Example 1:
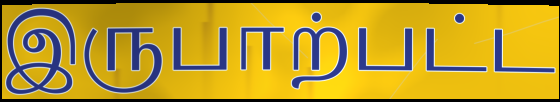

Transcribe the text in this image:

இருபாற்பட்ட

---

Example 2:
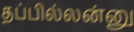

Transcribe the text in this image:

தப்பில்லன்னு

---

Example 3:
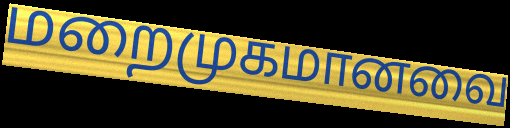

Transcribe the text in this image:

மறைமுகமானவை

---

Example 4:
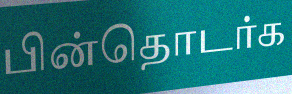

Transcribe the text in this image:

பின்தொடர்க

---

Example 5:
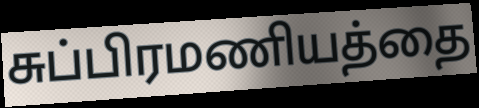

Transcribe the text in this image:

சுப்பிரமணியத்தை